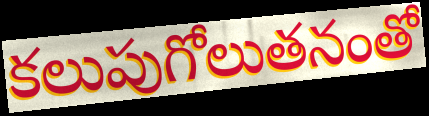
కలుపుగోలుతనంతో